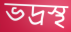
ভদ্রস্থ